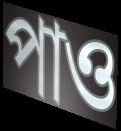
পাও